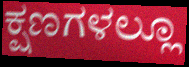
ಕ್ಷಣಗಳಲ್ಲೂ